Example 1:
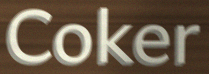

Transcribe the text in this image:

Coker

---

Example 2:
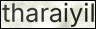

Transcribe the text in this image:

tharaiyil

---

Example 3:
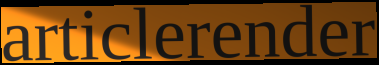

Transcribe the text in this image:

articlerender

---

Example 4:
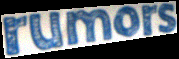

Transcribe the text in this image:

rumors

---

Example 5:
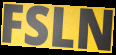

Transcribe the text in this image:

FSLN